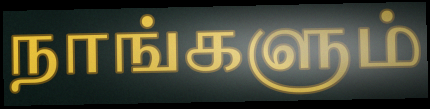
நாங்களும்